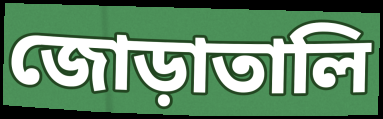
জোড়াতালি